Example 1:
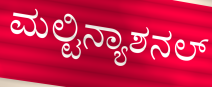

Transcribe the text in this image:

ಮಲ್ಟಿನ್ಯಾಶನಲ್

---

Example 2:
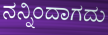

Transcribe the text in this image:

ನನ್ನಿಂದಾಗದು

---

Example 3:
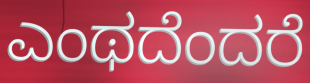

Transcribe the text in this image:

ಎಂಥದೆಂದರೆ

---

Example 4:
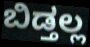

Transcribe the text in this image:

ಬಿಡ್ತಲ್ಲ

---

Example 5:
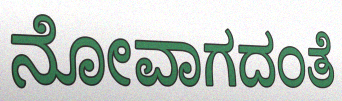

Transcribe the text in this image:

ನೋವಾಗದಂತೆ